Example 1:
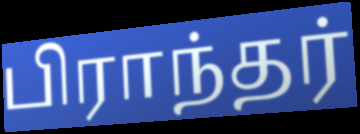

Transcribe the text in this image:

பிராந்தர்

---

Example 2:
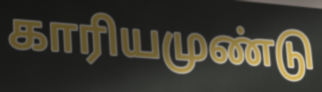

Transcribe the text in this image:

காரியமுண்டு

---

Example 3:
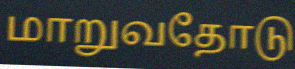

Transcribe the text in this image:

மாறுவதோடு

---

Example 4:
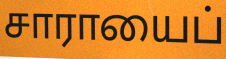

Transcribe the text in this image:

சாராயைப்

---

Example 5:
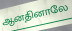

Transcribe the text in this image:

ஆனதினாலே